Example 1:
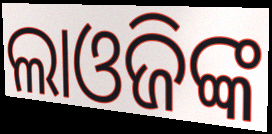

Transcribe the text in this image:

ଲାଓଜିଙ୍କ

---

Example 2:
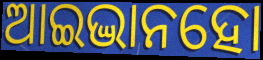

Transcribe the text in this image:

ଆଇଦ୍ଭାନହୋ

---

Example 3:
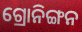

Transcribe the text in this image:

ଗ୍ରୋନିଙ୍ଗନ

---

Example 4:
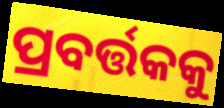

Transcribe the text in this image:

ପ୍ରବର୍ତ୍ତକକୁ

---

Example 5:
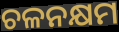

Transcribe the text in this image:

ଚଳନକ୍ଷମ